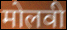
मोलवी